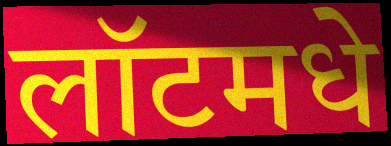
लॉटमधे